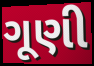
ગૂણી